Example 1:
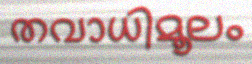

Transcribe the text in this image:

തവാധിമൂലം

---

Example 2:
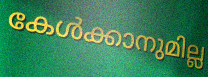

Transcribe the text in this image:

കേൾക്കാനുമില്ല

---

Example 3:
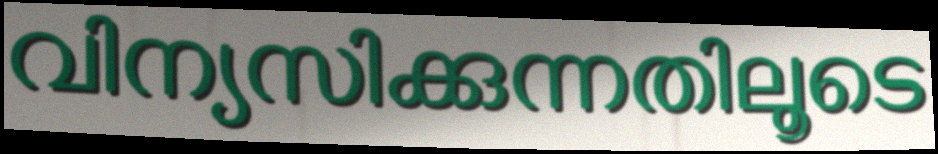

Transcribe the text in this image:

വിന്യസിക്കുന്നതിലൂടെ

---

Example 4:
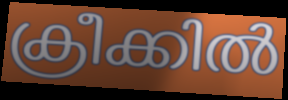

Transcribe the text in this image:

ക്രീക്കിൽ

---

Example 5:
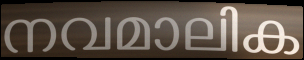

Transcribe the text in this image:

നവമാലിക